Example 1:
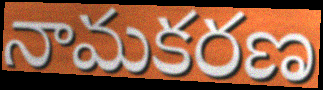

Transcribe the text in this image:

నామకరణ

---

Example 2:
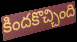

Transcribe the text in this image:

కిందకొచ్చింది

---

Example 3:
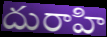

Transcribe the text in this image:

దురాహి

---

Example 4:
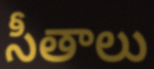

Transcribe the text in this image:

సీతాలు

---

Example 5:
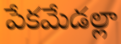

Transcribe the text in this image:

పేకమేడల్లా